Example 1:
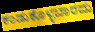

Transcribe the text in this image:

ಕಂಡುಕೊಳ್ಳಬಾರದು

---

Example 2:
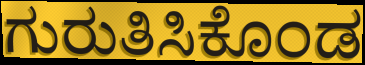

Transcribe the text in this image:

ಗುರುತಿಸಿಕೊಂಡ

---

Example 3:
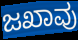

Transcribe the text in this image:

ಜಖಾವು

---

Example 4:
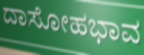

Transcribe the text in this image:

ದಾಸೋಹಭಾವ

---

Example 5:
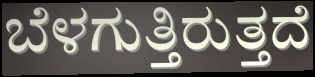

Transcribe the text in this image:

ಬೆಳಗುತ್ತಿರುತ್ತದೆ